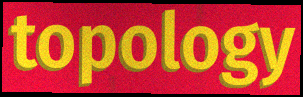
topology